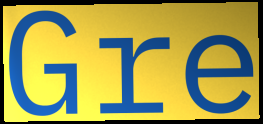
Gre